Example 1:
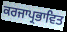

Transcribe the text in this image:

ਕਰਜਾਪ੍ਰਭਾਵਿਤ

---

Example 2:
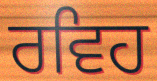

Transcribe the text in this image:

ਰਵਿਹ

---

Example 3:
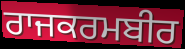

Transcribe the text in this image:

ਰਾਜਕਰਮਬੀਰ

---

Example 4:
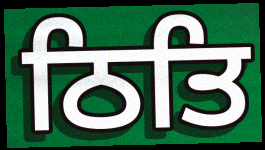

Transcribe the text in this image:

ਠਿਤਿ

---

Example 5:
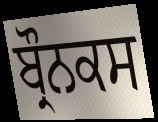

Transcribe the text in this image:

ਬ੍ਰੌਨਕਸ